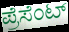
ಪ್ರೆಸೆಂಟ್